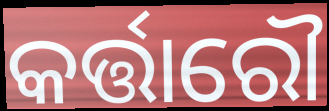
କର୍ତ୍ତାରୌ